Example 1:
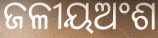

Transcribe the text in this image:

ଜଳୀୟଅଂଶ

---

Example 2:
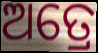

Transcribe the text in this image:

ଅତ୍ରେ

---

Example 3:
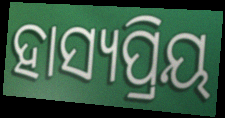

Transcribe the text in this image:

ହାସ୍ୟପ୍ରିୟ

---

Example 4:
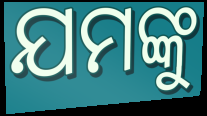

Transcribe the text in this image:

ଯମଙ୍କୁ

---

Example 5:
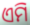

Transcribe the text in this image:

ଏମି